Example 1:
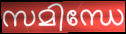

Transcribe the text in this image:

സമിന്ധേ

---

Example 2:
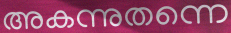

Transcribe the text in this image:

അകന്നുതന്നെ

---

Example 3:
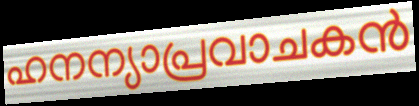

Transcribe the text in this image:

ഹനന്യാപ്രവാചകൻ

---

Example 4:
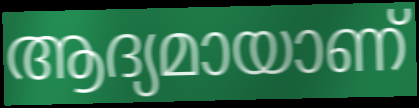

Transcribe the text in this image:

ആദ്യമായാണ്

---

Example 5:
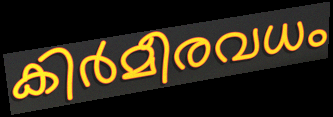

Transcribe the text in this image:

കിർമീരവധം